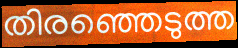
തിരഞ്ഞെടുത്ത